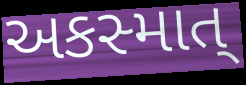
અકસ્માત્